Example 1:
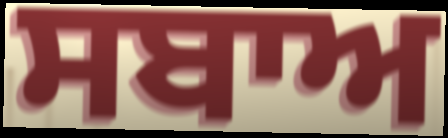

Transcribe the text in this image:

ਸਬਾਅ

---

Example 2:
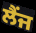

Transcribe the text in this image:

ਲੈਂਜ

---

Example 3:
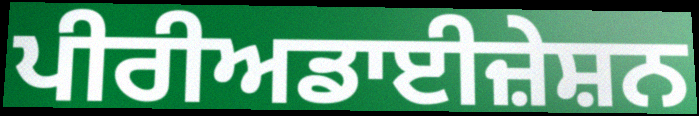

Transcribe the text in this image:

ਪੀਰੀਅਡਾਈਜ਼ੇਸ਼ਨ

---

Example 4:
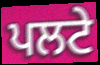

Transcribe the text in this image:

ਪਲਟੇ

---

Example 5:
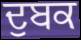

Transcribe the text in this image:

ਦੁਬਕ